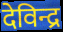
देविन्द्र